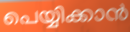
പെയ്യിക്കാൻ